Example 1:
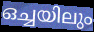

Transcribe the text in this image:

ഒച്ചയിലും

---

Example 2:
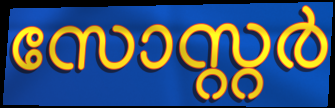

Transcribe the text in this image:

സോസ്റ്റർ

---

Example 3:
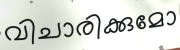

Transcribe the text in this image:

വിചാരിക്കുമോ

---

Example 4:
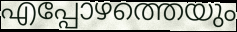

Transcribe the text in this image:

എപ്പോഴത്തെയും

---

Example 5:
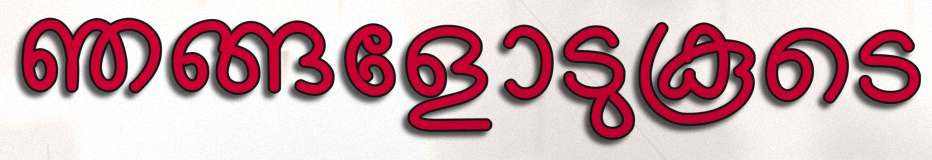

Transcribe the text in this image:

ഞങ്ങളോടുകൂടെ